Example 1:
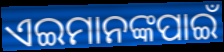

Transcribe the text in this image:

ଏଇମାନଙ୍କପାଇଁ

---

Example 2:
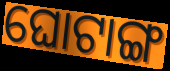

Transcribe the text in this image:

ଘୋଟାଙ୍ଗ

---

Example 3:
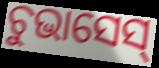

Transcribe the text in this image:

ଚୁଭାସେସ୍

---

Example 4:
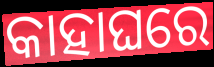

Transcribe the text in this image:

କାହାଘରେ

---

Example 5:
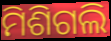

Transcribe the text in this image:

ମିଶିଗଲି